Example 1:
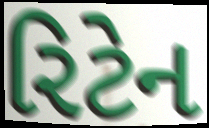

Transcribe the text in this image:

રિટેન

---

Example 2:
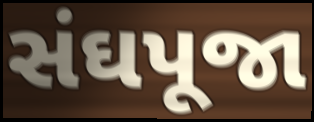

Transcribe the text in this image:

સંઘપૂજા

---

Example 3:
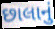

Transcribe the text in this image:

છાલાનું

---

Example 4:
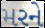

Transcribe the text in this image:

મરને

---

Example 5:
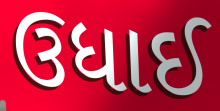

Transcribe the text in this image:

ઉધાઈ